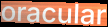
oracular